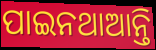
ପାଇନଥାଆନ୍ତି